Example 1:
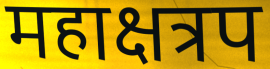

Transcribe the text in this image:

महाक्षत्रप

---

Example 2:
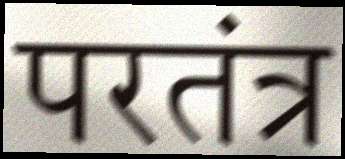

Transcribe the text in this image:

परतंत्र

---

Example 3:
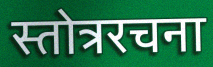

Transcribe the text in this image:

स्तोत्ररचना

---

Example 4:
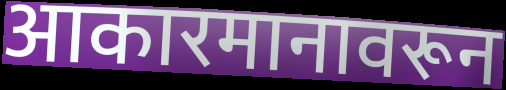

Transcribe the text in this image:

आकारमानावरून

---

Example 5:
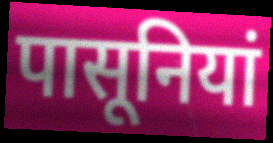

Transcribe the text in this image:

पासूनियां